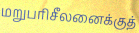
மறுபரிசீலனைக்குத்